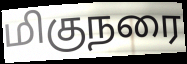
மிகுநரை